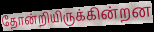
தோன்றியிருக்கின்றன